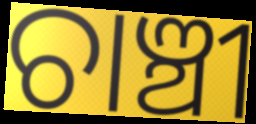
ଚାଞ୍ଚୀ